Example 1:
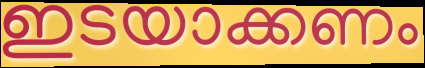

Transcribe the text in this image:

ഇടയാക്കണം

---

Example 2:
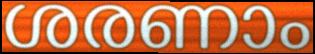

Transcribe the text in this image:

ശരണാം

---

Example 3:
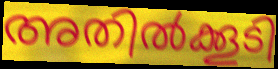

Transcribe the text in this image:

അതിൽക്കൂടി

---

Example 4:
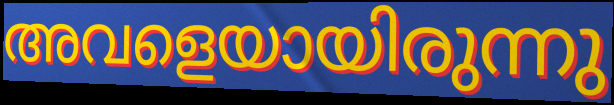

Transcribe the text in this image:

അവളെയായിരുന്നു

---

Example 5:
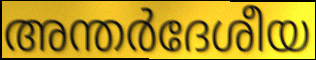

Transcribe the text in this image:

അന്തർദേശീയ